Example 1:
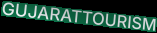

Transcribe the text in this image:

GUJARATTOURISM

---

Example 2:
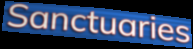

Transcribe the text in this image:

Sanctuaries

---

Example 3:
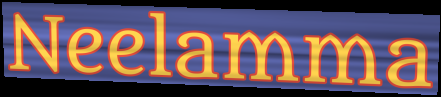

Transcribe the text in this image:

Neelamma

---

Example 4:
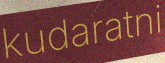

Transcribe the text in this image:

kudaratni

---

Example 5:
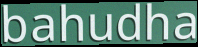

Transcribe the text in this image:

bahudha